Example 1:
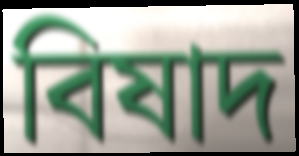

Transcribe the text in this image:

বিষাদ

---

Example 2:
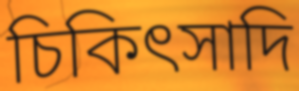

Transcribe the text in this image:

চিকিৎসাদি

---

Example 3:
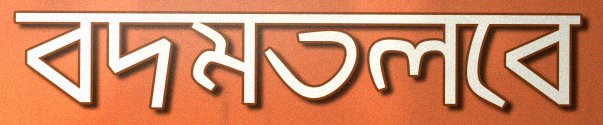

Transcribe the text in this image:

বদমতলবে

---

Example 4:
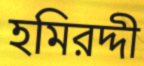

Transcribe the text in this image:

হমিরদ্দী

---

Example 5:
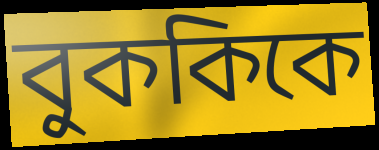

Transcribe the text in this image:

বুককিকে